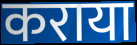
कराया